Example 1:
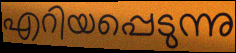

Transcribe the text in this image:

എറിയപ്പെടുന്നു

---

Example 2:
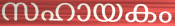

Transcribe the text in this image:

സഹായകം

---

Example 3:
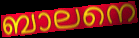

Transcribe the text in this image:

ബാലനെ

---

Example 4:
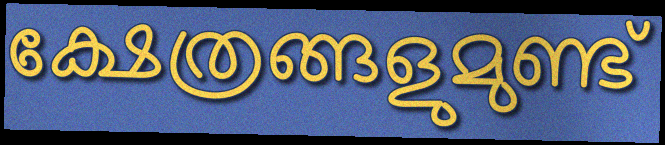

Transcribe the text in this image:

ക്ഷേത്രങ്ങളുമുണ്ട്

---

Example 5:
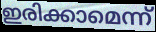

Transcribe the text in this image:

ഇരിക്കാമെന്ന്